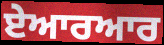
ਏਆਰਆਰ